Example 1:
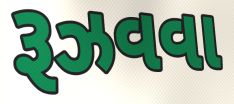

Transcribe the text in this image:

રૂઝવવા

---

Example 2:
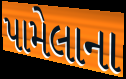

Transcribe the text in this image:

પામેલાના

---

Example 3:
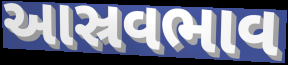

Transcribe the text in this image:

આસ્રવભાવ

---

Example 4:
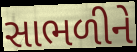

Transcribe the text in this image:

સાભળીને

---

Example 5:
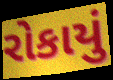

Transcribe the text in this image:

રોકાયું